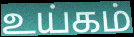
உய்கம்